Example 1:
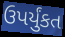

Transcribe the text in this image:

ઉપર્યુંકત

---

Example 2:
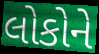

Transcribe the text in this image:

લોકોને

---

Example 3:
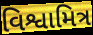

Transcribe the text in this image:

વિશ્વામિત્ર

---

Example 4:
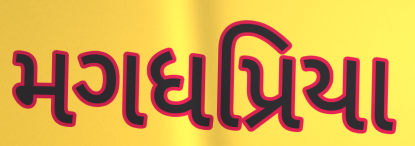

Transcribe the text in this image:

મગધપ્રિયા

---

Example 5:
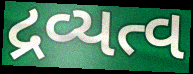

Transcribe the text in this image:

દ્રવ્યત્વ